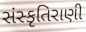
સંસ્કૃતિરાણી